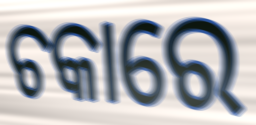
ଚକାରେ